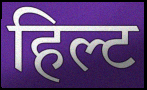
हिल्ट